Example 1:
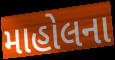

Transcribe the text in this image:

માહોલના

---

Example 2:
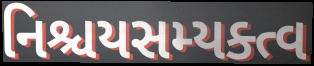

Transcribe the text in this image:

નિશ્ચયસમ્યક્ત્વ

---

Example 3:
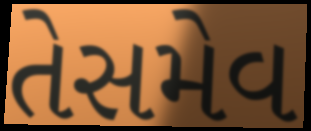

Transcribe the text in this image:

તેસમેવ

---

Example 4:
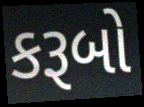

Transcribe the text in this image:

કરૂબો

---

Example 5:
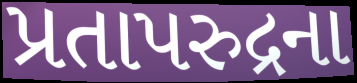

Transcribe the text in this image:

પ્રતાપરુદ્રના